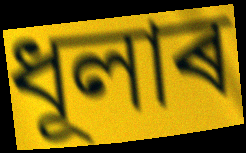
ধূলাৰ